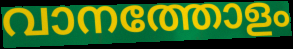
വാനത്തോളം